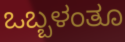
ಒಬ್ಬಳಂತೂ